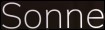
Sonne